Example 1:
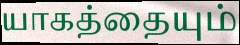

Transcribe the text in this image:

யாகத்தையும்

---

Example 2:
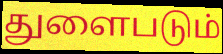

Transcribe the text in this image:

துளைபடும்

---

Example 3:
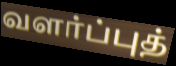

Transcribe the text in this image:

வளர்ப்புத்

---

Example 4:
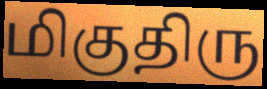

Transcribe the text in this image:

மிகுதிரு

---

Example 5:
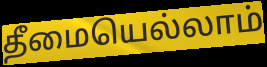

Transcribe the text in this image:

தீமையெல்லாம்